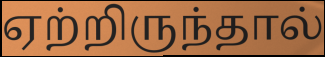
ஏற்றிருந்தால்